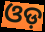
ଓଡ଼